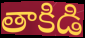
తాకిడి